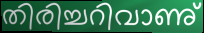
തിരിച്ചറിവാണു്